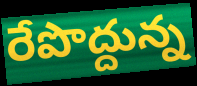
రేపొద్దున్న